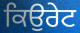
ਕਿਉਰੇਟ